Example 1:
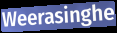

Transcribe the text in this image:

Weerasinghe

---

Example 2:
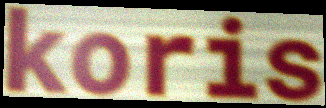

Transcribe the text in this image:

koris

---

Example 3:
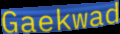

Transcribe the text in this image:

Gaekwad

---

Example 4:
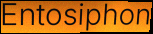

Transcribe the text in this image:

Entosiphon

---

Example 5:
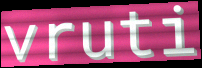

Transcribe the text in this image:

vruti